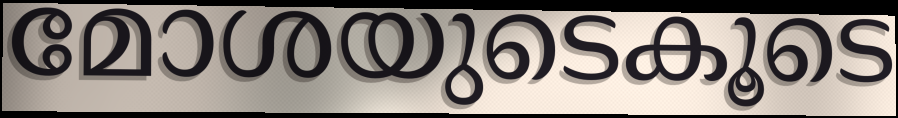
മോശയുടെകൂടെ